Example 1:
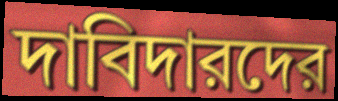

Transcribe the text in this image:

দাবিদারদের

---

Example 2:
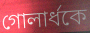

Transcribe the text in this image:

গোলার্ধকে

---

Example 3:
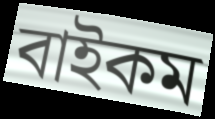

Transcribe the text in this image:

বাইকম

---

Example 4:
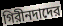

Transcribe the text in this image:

গিরীনদাদের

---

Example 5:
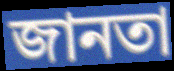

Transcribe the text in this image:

জানতা